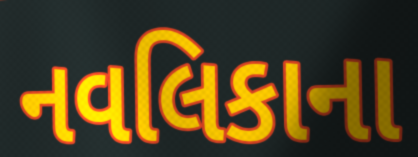
નવલિકાના